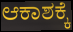
ಆಕಾಶಕ್ಕೆ